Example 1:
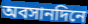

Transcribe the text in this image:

অবসানদিনে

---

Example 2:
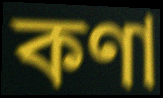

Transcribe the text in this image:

কণা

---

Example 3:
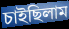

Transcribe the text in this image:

চাইছিলাম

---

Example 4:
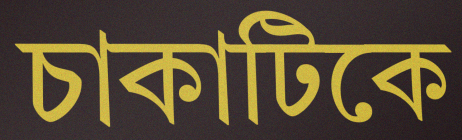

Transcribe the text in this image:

চাকাটিকে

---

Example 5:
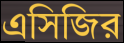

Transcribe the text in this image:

এসিজির